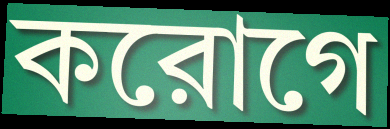
করোগে